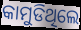
କାମୁଡିଥିଲେ